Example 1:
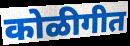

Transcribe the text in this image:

कोळीगीत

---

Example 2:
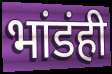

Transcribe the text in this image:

भांडंही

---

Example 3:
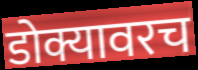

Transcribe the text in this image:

डोक्यावरच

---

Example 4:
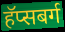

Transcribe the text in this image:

हॅप्सबर्ग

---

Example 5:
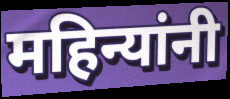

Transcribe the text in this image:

महिन्यांनी